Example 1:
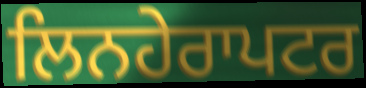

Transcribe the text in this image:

ਲਿਨਹੇਰਾਪਟਰ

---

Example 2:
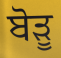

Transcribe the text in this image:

ਬੋੜੂ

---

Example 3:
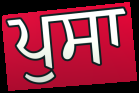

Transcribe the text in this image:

ਪੁਸਾ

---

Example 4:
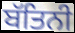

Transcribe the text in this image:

ਬੱਤਿਨੀ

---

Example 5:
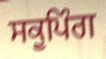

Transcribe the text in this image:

ਸਕੂਪਿੰਗ